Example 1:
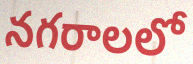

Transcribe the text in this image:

నగరాలలో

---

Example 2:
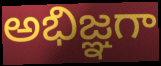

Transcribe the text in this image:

అభిజ్ఞగా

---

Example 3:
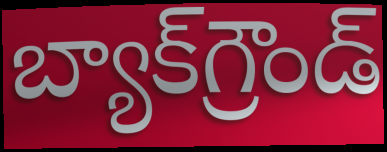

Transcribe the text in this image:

బ్యాక్‌గ్రౌండ్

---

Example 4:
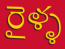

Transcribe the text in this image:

రైళ్ళ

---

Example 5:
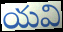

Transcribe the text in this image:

యవి